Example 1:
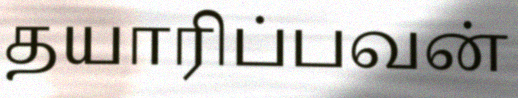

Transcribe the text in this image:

தயாரிப்பவன்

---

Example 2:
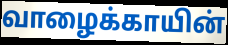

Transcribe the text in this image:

வாழைக்காயின்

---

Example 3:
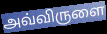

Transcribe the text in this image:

அவ்விருளை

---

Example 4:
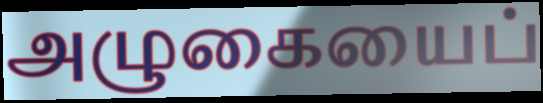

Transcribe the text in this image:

அழுகையைப்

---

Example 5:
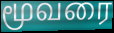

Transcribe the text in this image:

மூவரை